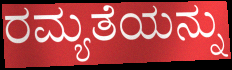
ರಮ್ಯತೆಯನ್ನು